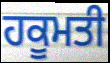
ਹਕੂਮਤੀ